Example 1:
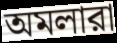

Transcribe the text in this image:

অমলারা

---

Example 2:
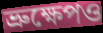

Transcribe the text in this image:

ভ্রুক্ষেপও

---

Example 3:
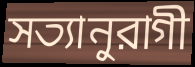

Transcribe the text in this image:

সত্যানুরাগী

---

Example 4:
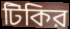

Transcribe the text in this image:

টিকির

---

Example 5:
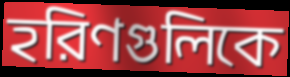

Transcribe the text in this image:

হরিণগুলিকে